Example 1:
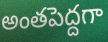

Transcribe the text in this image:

అంతపెద్దగా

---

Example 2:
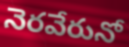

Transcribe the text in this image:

నెరవేరునో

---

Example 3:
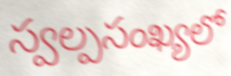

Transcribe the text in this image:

స్వల్పసంఖ్యలో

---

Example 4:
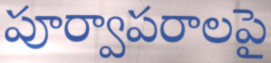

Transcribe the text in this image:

పూర్వాపరాలపై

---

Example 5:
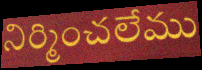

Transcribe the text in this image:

నిర్మించలేము